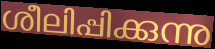
ശീലിപ്പിക്കുന്നു